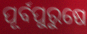
ପୂର୍ବପୁରୁଷେ